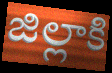
జిల్లాకి